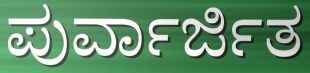
ಪುರ್ವಾರ್ಜಿತ